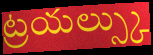
ట్రయల్స్కు